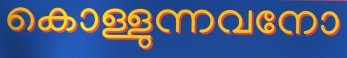
കൊള്ളുന്നവനോ